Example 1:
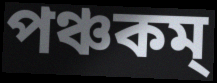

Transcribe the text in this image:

পঞ্চকম্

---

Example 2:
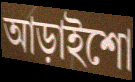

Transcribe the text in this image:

আড়াইশো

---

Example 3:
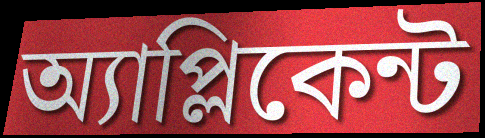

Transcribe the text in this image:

অ্যাপ্লিকেন্ট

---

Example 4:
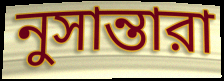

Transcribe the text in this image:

নুসান্তারা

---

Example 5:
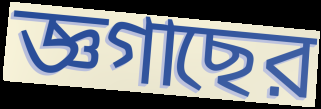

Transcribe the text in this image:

জ্ঞগাছের